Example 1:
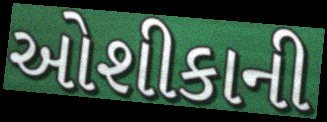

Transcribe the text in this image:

ઓશીકાની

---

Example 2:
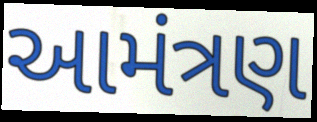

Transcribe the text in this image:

આમંત્રણ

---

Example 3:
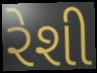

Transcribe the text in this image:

રેશી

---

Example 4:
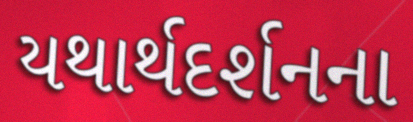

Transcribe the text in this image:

યથાર્થદર્શનના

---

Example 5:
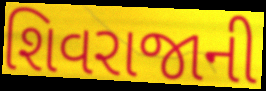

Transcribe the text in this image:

શિવરાજાની